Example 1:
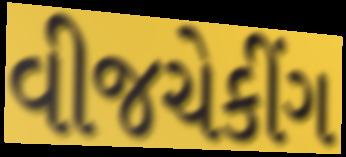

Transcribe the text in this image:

વીજચેકીંગ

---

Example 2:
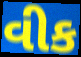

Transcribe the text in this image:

વીક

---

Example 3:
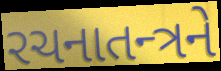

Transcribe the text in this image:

રચનાતન્ત્રને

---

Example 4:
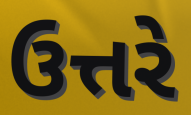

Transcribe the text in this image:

ઉત્તરે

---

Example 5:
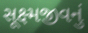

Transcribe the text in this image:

સૂક્ષ્મજીવનું